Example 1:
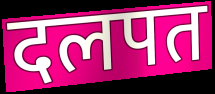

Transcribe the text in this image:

दलपत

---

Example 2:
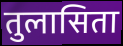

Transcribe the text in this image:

तुलासिता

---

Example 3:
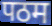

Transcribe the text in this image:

पठम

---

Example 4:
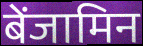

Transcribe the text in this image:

बेंजामिन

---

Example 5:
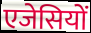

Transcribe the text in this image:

एजेसियों